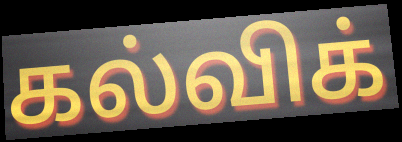
கல்விக்